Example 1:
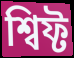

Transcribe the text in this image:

শ্বিফ্ট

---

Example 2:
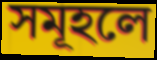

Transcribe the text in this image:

সমূহলে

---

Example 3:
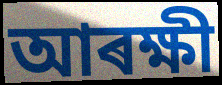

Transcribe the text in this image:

আৰক্ষী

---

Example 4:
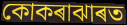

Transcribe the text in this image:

কোকৰাঝাৰত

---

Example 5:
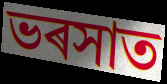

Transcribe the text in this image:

ভৰসাত